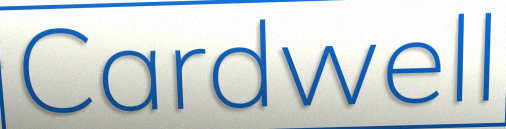
Cardwell